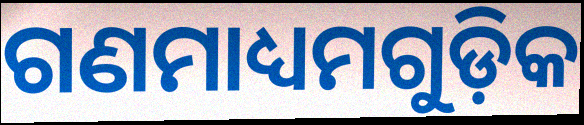
ଗଣମାଧ୍ୟମଗୁଡ଼ିକ